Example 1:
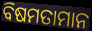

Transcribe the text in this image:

ବିଷମତାମାନ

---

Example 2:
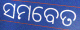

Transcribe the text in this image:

ସମବେତ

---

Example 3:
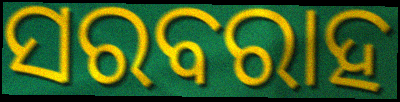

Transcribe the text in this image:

ସରବରାହ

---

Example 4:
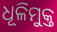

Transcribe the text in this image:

ଧୂଳିମୁକ୍ତ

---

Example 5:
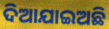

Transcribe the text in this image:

ଦିଆଯାଇଅଛି